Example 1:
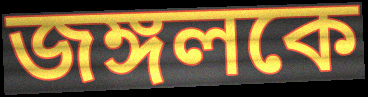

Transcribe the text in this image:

জঙ্গলকে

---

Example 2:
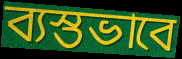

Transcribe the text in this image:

ব্যস্তভাবে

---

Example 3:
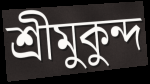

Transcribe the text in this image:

শ্রীমুকুন্দ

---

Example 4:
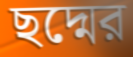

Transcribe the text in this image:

ছদ্মের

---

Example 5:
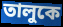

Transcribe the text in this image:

তালুকে